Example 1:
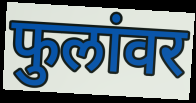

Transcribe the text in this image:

फुलांवर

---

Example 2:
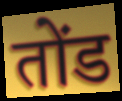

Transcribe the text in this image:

तोंड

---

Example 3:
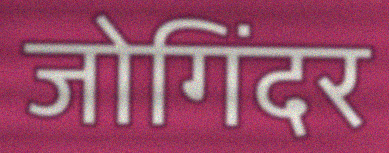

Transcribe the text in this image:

जोगिंदर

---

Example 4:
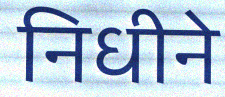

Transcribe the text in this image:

निधीने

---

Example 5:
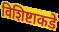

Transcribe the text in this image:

विशिष्टाकडे